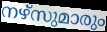
നഴ്സുമാരും